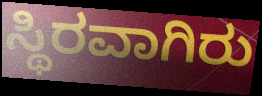
ಸ್ಥಿರವಾಗಿರು